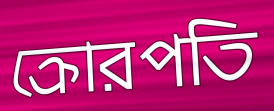
ক্রোরপতি